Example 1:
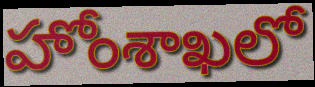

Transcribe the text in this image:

హోంశాఖలో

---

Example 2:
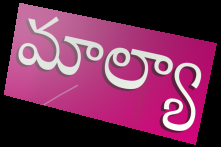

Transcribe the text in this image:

మాల్యా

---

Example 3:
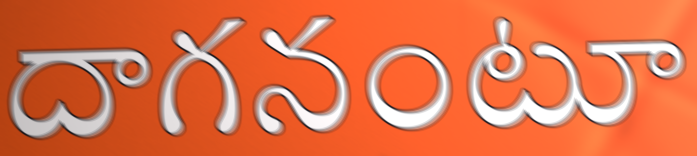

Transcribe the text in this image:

దాగనంటూ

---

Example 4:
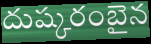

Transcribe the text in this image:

దుష్కరంబైన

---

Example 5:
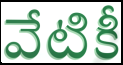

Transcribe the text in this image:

వేటికీ